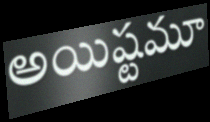
అయిష్టమూ